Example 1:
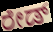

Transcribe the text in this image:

ರೇಡ್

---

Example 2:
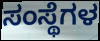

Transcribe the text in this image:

ಸಂಸ್ಥೆಗಳ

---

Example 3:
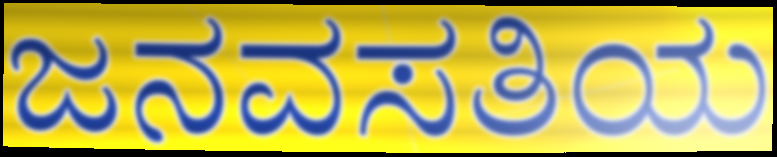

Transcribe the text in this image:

ಜನವಸತಿಯ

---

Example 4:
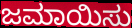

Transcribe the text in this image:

ಜಮಾಯಿಸು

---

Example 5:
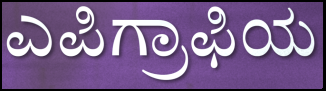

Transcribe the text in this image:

ಎಪಿಗ್ರಾಫಿಯ